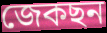
জেকছন